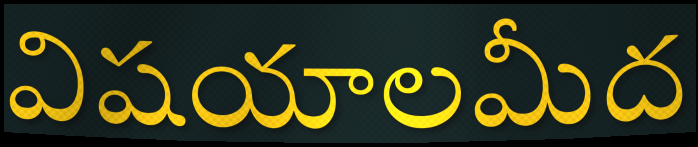
విషయాలమీద